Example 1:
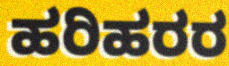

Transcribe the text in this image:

ಹರಿಹರರ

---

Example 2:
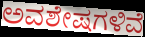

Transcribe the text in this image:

ಅವಶೇಷಗಳಿವೆ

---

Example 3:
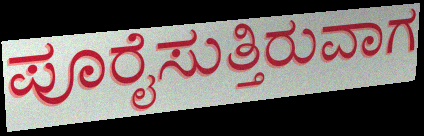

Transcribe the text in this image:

ಪೂರೈಸುತ್ತಿರುವಾಗ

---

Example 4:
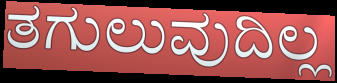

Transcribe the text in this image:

ತಗುಲುವುದಿಲ್ಲ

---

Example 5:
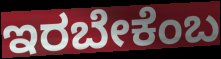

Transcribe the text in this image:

ಇರಬೇಕೆಂಬ